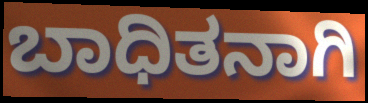
ಬಾಧಿತನಾಗಿ